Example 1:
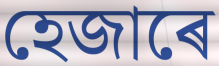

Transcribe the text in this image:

হেজাৰে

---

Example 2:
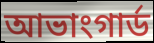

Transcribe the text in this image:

আভাংগাৰ্ড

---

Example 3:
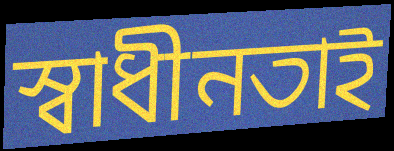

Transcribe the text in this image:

স্বাধীনতাই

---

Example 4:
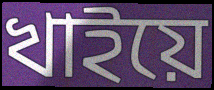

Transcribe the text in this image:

খাইয়ে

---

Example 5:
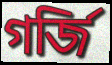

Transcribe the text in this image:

গৰ্জি